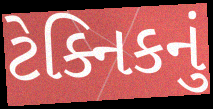
ટેક્નિકનું